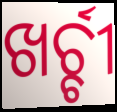
ଖର୍ଚ୍ଚୀ